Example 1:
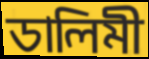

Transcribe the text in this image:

ডালিমী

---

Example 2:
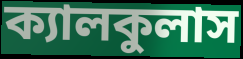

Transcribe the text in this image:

ক্যালকুলাস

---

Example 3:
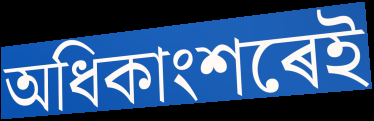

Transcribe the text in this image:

অধিকাংশৰেই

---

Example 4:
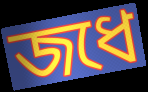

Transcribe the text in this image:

জধে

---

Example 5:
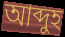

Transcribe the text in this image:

আব্দুহ